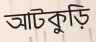
আটকুড়ি